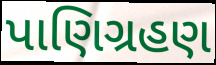
પાણિગ્રહણ